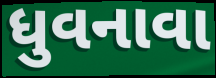
ધુવનાવા